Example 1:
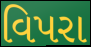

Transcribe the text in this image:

વિપરા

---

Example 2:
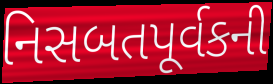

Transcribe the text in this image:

નિસબતપૂર્વકની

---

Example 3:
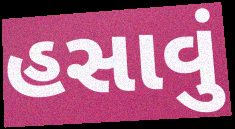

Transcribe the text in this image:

હસાવું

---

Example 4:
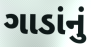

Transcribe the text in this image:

ગાડાંનું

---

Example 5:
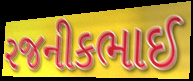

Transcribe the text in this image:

રજનીકભાઈ